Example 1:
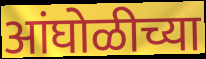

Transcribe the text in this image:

आंघोळीच्या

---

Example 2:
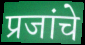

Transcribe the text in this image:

प्रजांचे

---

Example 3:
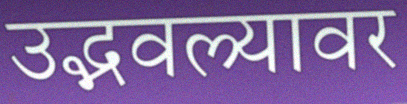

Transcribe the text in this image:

उद्भवल्यावर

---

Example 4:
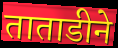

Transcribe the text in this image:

ताताडीने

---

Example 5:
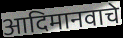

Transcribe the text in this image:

आदिमानवाचे